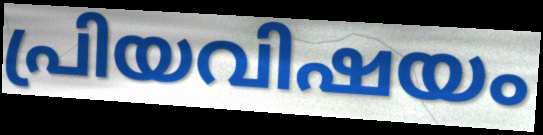
പ്രിയവിഷയം